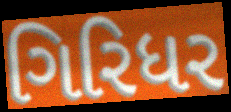
ગિરિધર